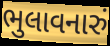
ભુલાવનારું